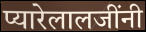
प्यारेलालजींनी